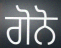
ਗੋਨੋ